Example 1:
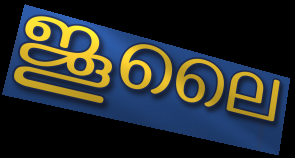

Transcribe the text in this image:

ജൂലൈ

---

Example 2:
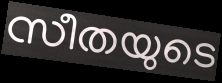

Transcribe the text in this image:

സീതയുടെ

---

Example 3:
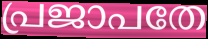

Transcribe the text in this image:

പ്രജാപതേ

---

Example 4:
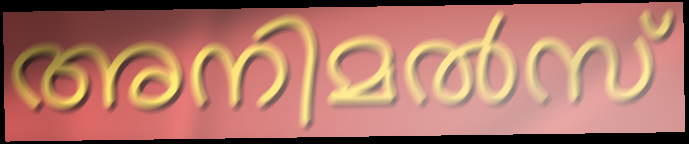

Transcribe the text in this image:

അനിമൽസ്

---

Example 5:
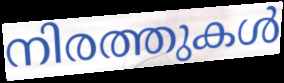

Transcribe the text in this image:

നിരത്തുകൾ